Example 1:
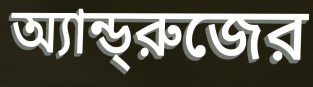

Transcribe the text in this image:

অ্যান্ড্‌রুজের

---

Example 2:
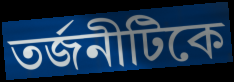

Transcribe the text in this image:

তর্জনীটিকে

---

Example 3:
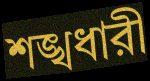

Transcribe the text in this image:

শঙ্খধারী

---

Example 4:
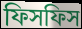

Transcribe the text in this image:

ফিসফিস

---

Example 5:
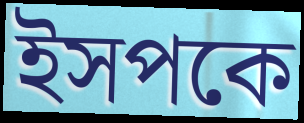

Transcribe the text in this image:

ইসপকে